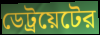
ডেট্রয়েটের